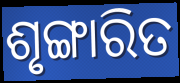
ଶୃଙ୍ଗାରିତ